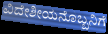
ವಿದೇಶೀಯನೊಬ್ಬನಿಗೆ